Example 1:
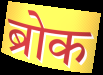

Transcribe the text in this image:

ब्रोक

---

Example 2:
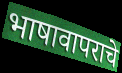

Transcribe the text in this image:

भाषावापराचे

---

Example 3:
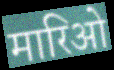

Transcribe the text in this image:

मारिओ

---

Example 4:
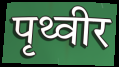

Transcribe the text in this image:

पृथ्वीर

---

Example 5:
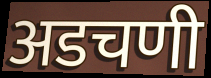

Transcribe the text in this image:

अडचणी